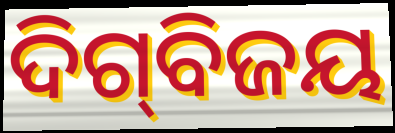
ଦିଗ୍‍ବିଜୟ